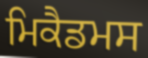
ਮਿਕੈਡਮਸ